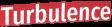
Turbulence